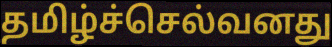
தமிழ்ச்செல்வனது